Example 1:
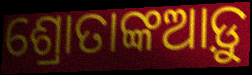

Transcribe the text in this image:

ଶ୍ରୋତାଙ୍କଆଡ଼ୁ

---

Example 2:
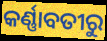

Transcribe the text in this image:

କର୍ଣ୍ଣାବତୀରୁ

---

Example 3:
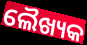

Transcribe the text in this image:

ଲୈଖ୍ୟକ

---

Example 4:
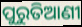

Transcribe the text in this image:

ପୁରୁତିଆଣୀ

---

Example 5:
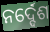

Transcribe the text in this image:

ନର୍ଦ୍ଦେଶ